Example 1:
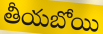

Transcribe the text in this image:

తీయబోయి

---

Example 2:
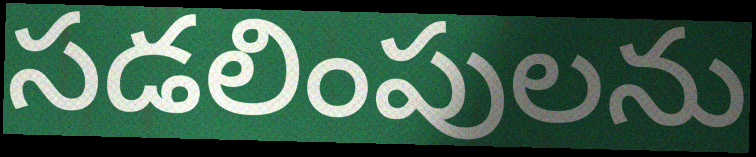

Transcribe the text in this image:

సడలింపులను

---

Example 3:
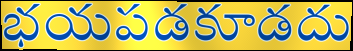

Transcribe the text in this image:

భయపడకూడదు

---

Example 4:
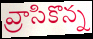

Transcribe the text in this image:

వ్రాసికొన్న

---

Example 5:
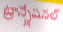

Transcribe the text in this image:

ట్రాన్స్లేషనల్